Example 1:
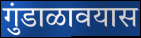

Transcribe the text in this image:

गुंडाळावयास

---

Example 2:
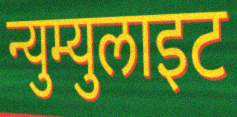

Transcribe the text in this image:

न्युम्युलाइट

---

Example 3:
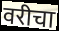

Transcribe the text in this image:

वरीचा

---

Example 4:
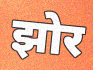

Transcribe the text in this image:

झोर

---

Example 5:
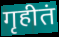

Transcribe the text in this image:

गृहीतं